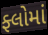
ફ્લોમાં